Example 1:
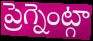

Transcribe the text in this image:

ప్రెగ్నెంట్గా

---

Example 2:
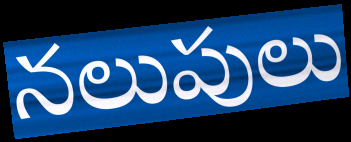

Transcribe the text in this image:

నలుపులు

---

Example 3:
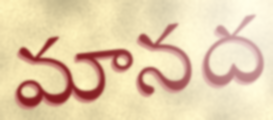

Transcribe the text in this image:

మానద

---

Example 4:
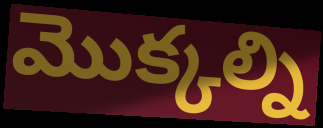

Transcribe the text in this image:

మొక్కల్ని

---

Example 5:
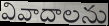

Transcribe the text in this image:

వివాదాలను